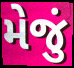
મેજું